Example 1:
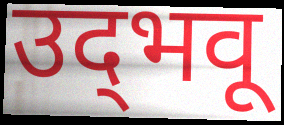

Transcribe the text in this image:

उद्‌भवू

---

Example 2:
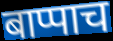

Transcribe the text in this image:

बाप्पाच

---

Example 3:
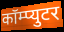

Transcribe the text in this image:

कॉम्प्युटर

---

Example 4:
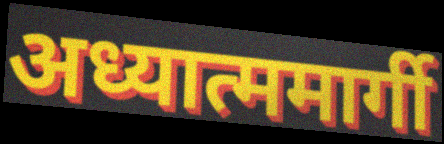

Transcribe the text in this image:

अध्यात्ममार्गी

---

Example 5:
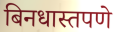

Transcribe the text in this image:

बिनधास्तपणे